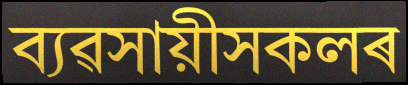
ব্যৱসায়ীসকলৰ